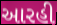
આરહી